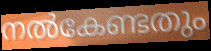
നൽകേണ്ടതും